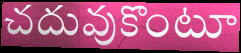
చదువుకొంటూ